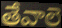
తేవాలె